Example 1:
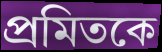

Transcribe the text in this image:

প্রমিতকে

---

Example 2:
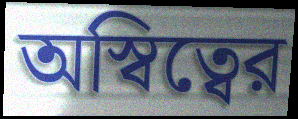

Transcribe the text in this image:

অস্বিত্বের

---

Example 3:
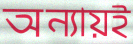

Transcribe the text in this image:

অন্যায়ই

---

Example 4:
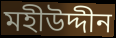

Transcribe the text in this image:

মহীউদ্দীন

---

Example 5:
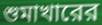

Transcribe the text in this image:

শুমাখারের